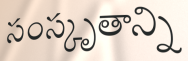
సంస్కృతాన్ని